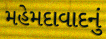
મહેમદાવાદનું